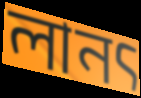
লানৎ